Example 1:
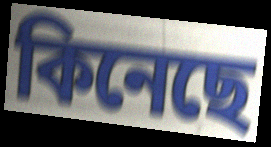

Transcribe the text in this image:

কিনেছে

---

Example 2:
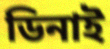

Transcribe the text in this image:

ডিনাই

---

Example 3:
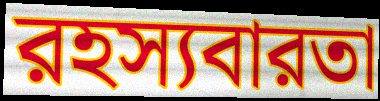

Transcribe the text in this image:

রহস্যবারতা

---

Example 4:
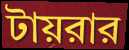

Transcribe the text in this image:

টায়রার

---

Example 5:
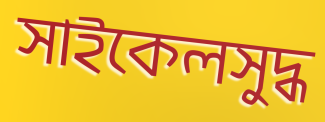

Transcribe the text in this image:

সাইকেলসুদ্ধ